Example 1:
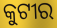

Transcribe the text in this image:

କୁଟୀର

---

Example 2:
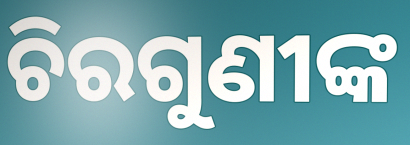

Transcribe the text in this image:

ଚିରଗୁଣୀଙ୍କ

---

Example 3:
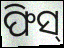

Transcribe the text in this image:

ଫିସ୍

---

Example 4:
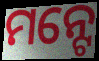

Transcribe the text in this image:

ମନ୍ଟେ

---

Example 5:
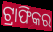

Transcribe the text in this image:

ଟ୍ରାଫିକର